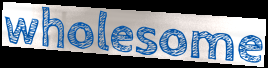
wholesome